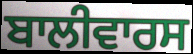
ਬਾਲੀਵਾਰਸ